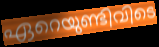
ഏറെയുണ്ടിവിടെ